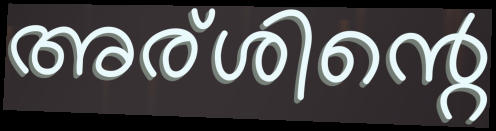
അര്ശിന്റെ